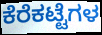
ಕೆರೆಕಟ್ಟೆಗಳ